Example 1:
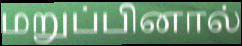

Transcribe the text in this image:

மறுப்பினால்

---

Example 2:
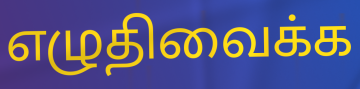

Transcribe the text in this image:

எழுதிவைக்க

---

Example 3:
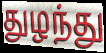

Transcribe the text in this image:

துழந்து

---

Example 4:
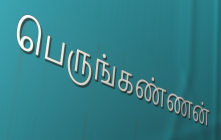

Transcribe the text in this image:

பெருங்கண்ணன்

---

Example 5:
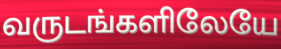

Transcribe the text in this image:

வருடங்களிலேயே